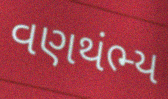
વણથંભ્ય